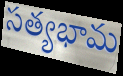
సత్యభామ